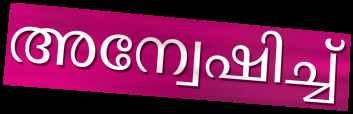
അന്വേഷിച്ച്